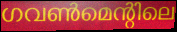
ഗവൺമെന്റിലെ